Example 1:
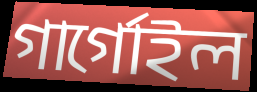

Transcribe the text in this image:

গাৰ্গোইল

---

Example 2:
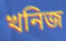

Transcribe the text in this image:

খনিজ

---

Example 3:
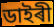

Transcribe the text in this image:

ডাইৰী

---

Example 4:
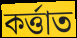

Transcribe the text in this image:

কৰ্ত্তাত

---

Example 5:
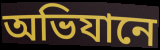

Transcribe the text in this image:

অভিযানে